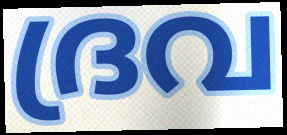
ദ്രവ